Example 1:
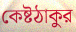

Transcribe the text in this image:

কেষ্টঠাকুর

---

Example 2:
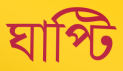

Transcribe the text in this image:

ঘাপ্টি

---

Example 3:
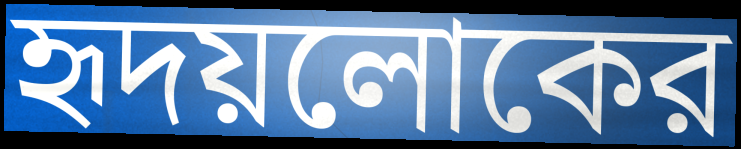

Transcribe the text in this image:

হৃদয়লোকের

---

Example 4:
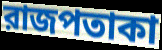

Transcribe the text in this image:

রাজপতাকা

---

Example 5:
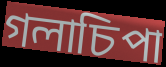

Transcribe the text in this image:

গলাচিপা